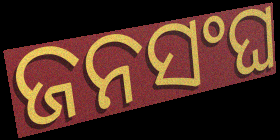
ଜନସଂଘ